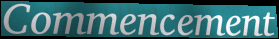
Commencement